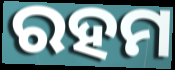
ରହମ